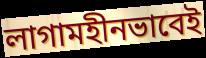
লাগামহীনভাবেই